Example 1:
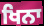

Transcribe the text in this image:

ਖਿਨਾ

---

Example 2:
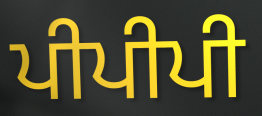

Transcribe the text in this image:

ਪੀਪੀਪੀ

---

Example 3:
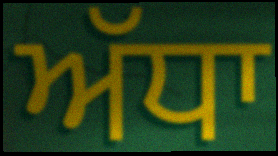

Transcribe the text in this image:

ਅੱਧਾ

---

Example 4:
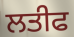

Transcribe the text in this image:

ਲਤੀਫ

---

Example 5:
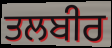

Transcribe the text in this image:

ਤਲਬੀਰ